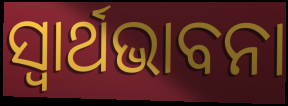
ସ୍ଵାର୍ଥଭାବନା